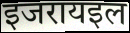
इजरायइल